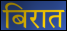
बिरात